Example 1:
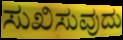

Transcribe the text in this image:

ಸುಖಿಸುವುದು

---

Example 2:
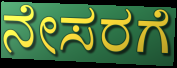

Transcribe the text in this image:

ನೇಸರಗೆ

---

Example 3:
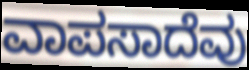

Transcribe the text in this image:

ವಾಪಸಾದೆವು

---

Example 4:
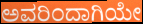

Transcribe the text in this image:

ಅವರಿಂದಾಗಿಯೇ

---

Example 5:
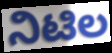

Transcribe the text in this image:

ನಿಟಿಲ